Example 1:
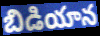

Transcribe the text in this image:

బిడియాన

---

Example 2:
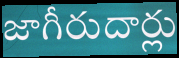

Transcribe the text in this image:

జాగీరుదార్లు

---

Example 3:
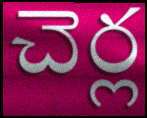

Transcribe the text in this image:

చెర్ల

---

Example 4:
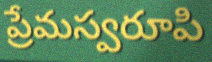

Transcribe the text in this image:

ప్రేమస్వరూపి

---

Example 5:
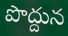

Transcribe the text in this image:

పొద్దున